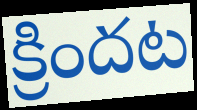
క్రిందట